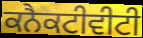
ਕਨੈਕਟੀਵੀਟੀ